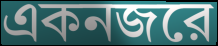
একনজরে